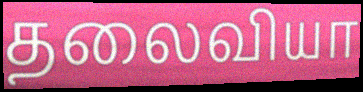
தலைவியா